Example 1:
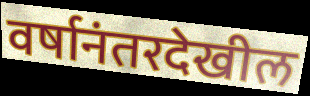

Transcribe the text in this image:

वर्षानंतरदेखील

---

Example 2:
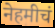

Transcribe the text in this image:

नेहमीचं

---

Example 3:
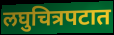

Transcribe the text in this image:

लघुचित्रपटात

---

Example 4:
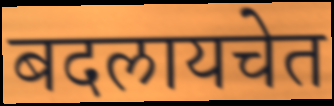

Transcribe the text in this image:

बदलायचेत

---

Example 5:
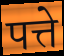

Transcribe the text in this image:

पत्ते